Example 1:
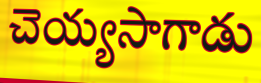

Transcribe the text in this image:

చెయ్యసాగాడు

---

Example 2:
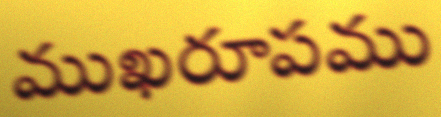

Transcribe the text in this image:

ముఖరూపము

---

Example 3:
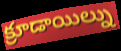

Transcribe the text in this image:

క్రూడాయిల్ను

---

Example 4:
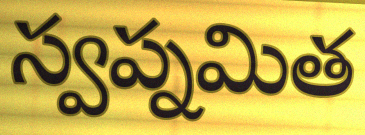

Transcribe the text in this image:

స్వప్నమిత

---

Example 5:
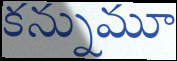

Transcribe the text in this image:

కన్నుమూ